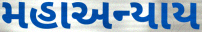
મહાઅન્યાય